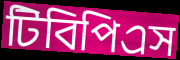
টিবিপিএস